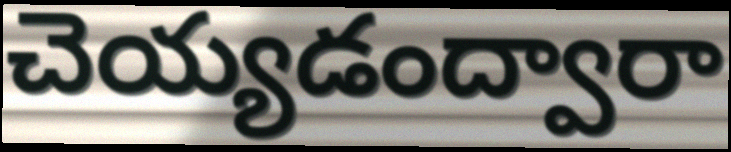
చెయ్యడంద్వారా